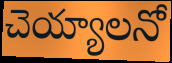
చెయ్యాలనో